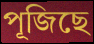
পূজিছে